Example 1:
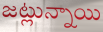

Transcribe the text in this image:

జట్లున్నాయి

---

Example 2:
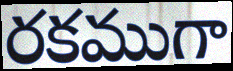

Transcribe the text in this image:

రకముగా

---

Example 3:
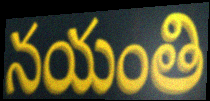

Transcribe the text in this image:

నయంతి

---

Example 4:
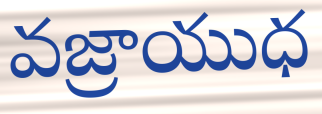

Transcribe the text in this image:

వజ్రాయుధ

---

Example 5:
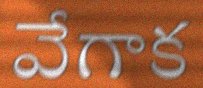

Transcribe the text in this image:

వేగాక